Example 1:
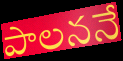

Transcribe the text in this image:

పాలననే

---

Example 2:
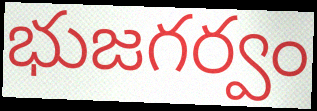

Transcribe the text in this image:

భుజగర్వం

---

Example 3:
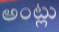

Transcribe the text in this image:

అంట్లు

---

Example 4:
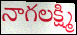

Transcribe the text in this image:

నాగలక్ష్మి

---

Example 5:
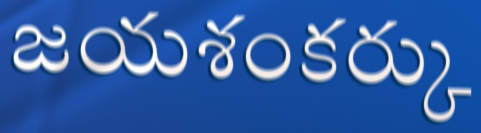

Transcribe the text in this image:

జయశంకర్కు